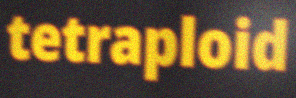
tetraploid